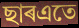
ছাৰএতে